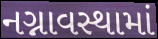
નગ્નાવસ્થામાં